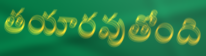
తయారవుతోంది